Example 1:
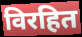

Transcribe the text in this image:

विरहित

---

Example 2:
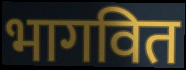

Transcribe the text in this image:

भागवित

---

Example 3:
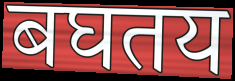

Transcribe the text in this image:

बघतय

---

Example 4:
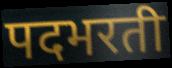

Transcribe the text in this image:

पदभरती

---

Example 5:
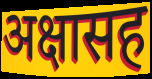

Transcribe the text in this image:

अक्षासह